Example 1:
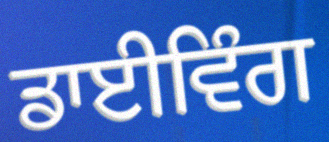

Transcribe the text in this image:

ਡਾਈਵਿੰਗ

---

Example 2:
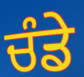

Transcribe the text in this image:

ਚੰਡੇ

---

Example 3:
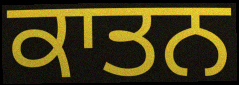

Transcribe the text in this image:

ਕਾਤਨ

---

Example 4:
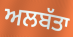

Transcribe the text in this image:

ਅਲਬੱਤਾ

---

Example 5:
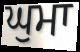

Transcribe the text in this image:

ਘੁਮਾ